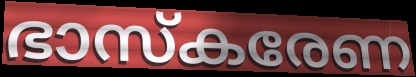
ഭാസ്കരേണ